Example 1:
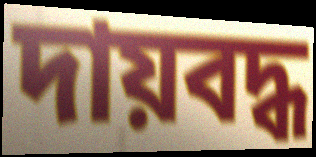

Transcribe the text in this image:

দায়বদ্ধ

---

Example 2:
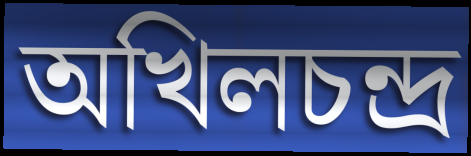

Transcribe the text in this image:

অখিলচন্দ্র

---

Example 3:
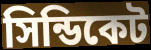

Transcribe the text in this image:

সিন্ডিকেট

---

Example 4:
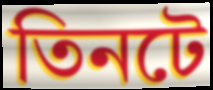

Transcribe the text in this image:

তিনটে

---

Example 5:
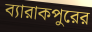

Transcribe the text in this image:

ব্যারাকপুরের